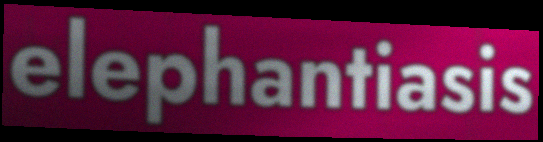
elephantiasis